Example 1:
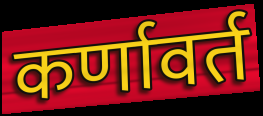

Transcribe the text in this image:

कर्णावर्त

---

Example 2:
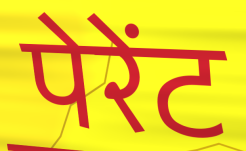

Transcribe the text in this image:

पेरेंट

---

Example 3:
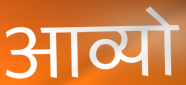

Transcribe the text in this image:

आव्यो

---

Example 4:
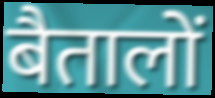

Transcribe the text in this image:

बैतालों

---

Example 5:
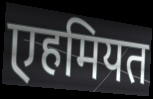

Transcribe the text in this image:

एहमियत